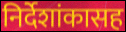
निर्देशांकासह